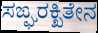
ಸಙ್ಘರಕ್ಖಿತೇನ